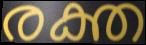
രക്ത